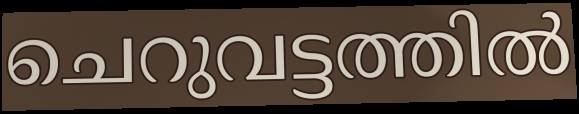
ചെറുവട്ടത്തിൽ